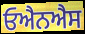
ਓਐਨਐਸ